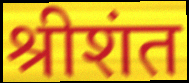
श्रीशंत